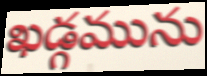
ఖడ్గమును